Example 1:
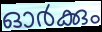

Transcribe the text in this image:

ഓർക്കും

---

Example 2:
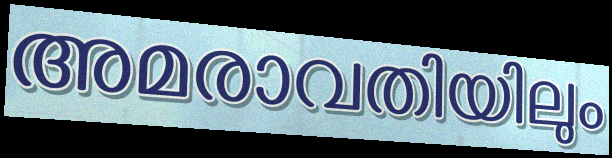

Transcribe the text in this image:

അമരാവതിയിലും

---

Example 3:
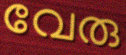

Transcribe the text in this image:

വേരു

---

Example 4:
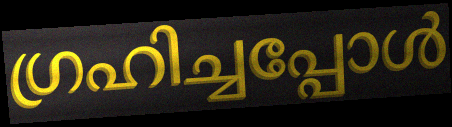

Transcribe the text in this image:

ഗ്രഹിച്ചപ്പോൾ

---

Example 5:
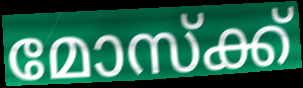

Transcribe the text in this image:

മോസ്ക്ക്